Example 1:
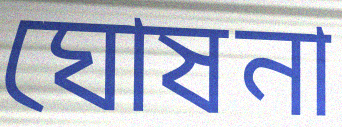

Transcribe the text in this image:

ঘোষনা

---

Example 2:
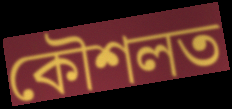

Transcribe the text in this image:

কৌশলত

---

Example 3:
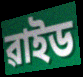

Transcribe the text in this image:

ৱাইড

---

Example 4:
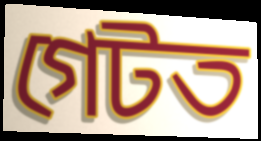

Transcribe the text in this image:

গেটত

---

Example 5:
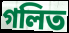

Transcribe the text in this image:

গলিত